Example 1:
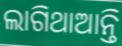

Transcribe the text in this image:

ଲାଗିଥାଆନ୍ତି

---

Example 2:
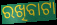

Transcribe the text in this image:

ରଖିବାଟା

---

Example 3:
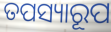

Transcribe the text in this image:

ତପସ୍ୟାରୂପ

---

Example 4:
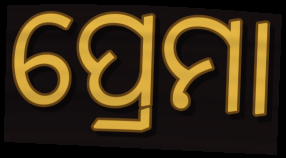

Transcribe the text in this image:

ପ୍ରେମା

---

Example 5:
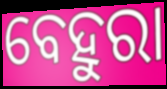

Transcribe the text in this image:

ବେହୁରା